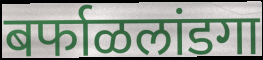
बर्फाळलांडगा